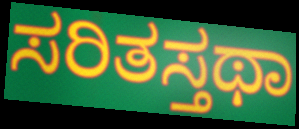
ಸರಿತಸ್ತಥಾ